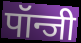
पॉन्जी